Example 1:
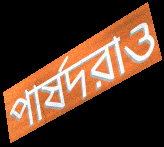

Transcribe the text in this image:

পার্ষদরাও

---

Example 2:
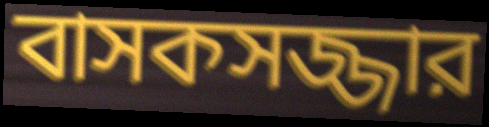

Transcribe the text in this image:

বাসকসজ্জার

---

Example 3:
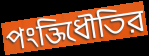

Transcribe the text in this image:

পংক্তিধৌতির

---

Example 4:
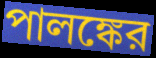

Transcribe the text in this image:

পালঙ্কের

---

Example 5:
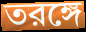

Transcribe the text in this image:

তরঙ্গে